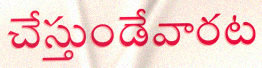
చేస్తుండేవారట